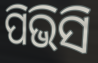
ପିଭିସି